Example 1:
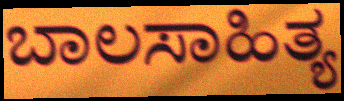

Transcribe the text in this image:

ಬಾಲಸಾಹಿತ್ಯ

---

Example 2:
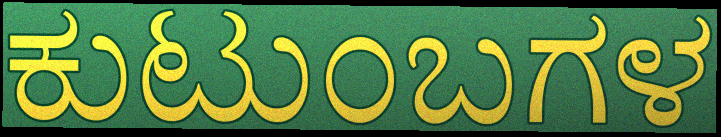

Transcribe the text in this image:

ಕುಟುಂಬಗಳ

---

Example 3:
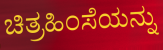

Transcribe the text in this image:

ಚಿತ್ರಹಿಂಸೆಯನ್ನು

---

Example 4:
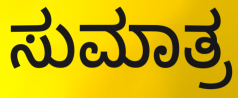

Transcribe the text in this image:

ಸುಮಾತ್ರ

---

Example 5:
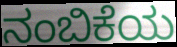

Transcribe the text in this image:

ನಂಬಿಕೆಯ